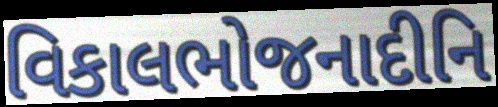
વિકાલભોજનાદીનિ